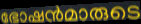
ഭോഷൻമാരുടെ